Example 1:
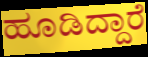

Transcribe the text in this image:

ಹೂಡಿದ್ದಾರೆ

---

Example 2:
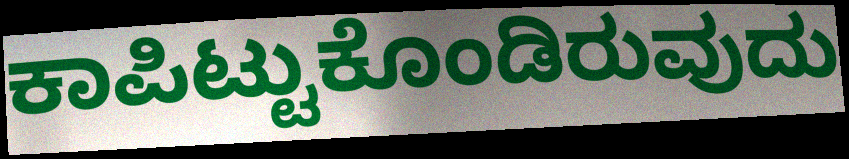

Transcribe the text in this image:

ಕಾಪಿಟ್ಟುಕೊಂಡಿರುವುದು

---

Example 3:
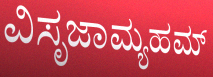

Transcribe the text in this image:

ವಿಸೃಜಾಮ್ಯಹಮ್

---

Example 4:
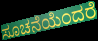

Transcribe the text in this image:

ಸೂಚನೆಯೆಂದರೆ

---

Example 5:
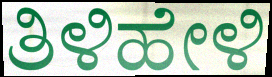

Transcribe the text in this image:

ತಿಳಿಹೇಳಿ